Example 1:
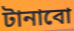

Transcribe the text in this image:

টানাবো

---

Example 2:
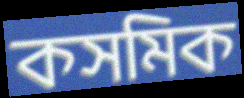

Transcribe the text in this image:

কসমিক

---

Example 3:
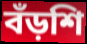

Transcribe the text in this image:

বঁড়শি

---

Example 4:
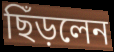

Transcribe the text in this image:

ছিঁড়লেন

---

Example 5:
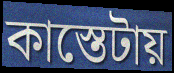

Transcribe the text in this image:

কাস্তেটায়